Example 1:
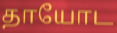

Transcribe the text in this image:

தாயோட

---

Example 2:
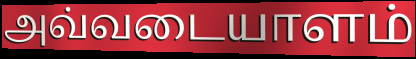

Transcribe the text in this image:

அவ்வடையாளம்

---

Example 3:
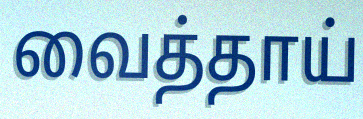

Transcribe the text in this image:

வைத்தாய்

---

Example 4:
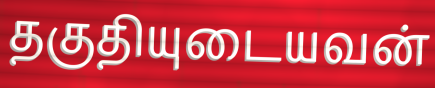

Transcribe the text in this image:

தகுதியுடையவன்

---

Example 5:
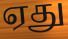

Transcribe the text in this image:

ஏது